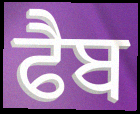
ਫੈਬ